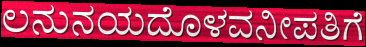
ಲನುನಯದೊಳವನೀಪತಿಗೆ